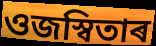
ওজস্বিতাৰ